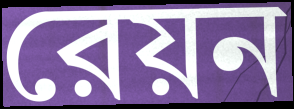
রেয়ন